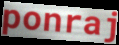
ponraj